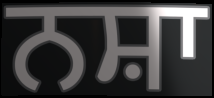
ਨਸ਼ਾ